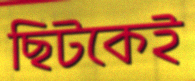
ছিটকেই